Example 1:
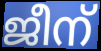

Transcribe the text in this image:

ജീന്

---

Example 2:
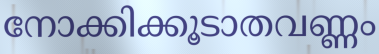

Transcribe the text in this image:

നോക്കിക്കൂടാതവണ്ണം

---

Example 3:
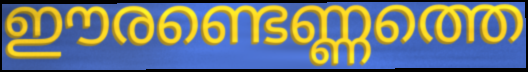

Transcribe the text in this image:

ഈരണ്ടെണ്ണത്തെ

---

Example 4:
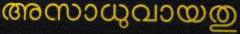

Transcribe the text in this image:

അസാധുവായതു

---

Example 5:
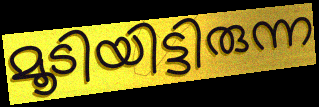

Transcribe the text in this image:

മൂടിയിട്ടിരുന്ന